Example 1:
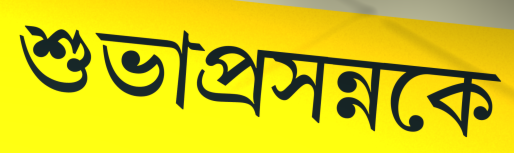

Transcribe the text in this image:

শুভাপ্রসন্নকে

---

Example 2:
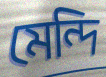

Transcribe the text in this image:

মেন্দি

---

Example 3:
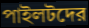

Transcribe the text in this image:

পাইলটদের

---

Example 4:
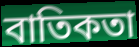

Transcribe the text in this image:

বাতিকতা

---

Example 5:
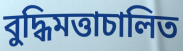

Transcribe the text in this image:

বুদ্ধিমত্তাচালিত